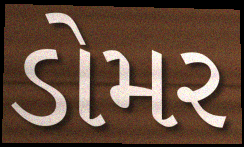
ડોમર